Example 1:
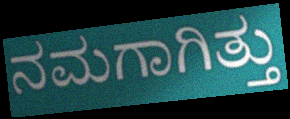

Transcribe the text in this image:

ನಮಗಾಗಿತ್ತು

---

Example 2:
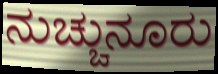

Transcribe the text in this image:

ನುಚ್ಚುನೂರು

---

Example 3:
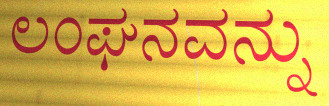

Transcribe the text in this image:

ಲಂಘನವನ್ನು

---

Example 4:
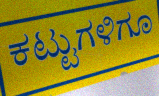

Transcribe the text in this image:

ಕಟ್ಟುಗಳಿಗೂ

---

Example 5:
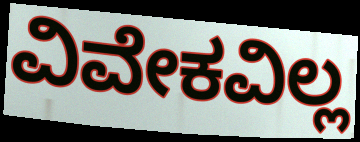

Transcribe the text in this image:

ವಿವೇಕವಿಲ್ಲ